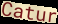
Catur